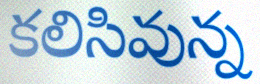
కలిసివున్న